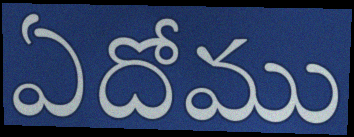
ఏదోము